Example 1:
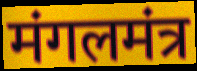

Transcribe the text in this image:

मंगलमंत्र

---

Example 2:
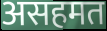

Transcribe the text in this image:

असहमत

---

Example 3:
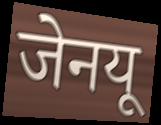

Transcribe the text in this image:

जेनयू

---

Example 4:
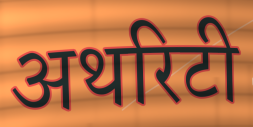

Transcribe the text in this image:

अथरिटी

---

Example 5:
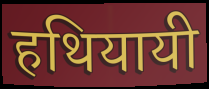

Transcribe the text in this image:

हथियायी